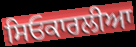
ਸਿਓਕਾਰਲੀਆ